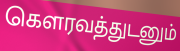
கௌரவத்துடனும்